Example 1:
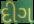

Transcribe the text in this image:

દીગ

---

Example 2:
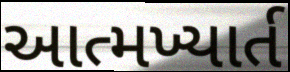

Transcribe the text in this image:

આત્મખ્યાર્ત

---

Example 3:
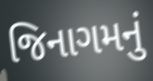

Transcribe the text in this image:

જિનાગમનું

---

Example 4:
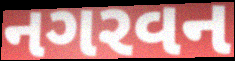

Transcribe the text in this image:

નગરવન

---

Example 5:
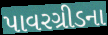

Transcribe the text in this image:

પાવરગ્રીડના